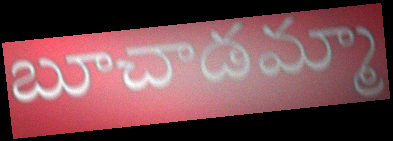
బూచాడమ్మా